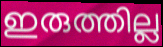
ഇരുത്തില്ല